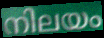
നിലയം